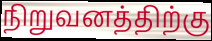
நிறுவனத்திற்கு